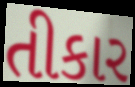
તીકાર